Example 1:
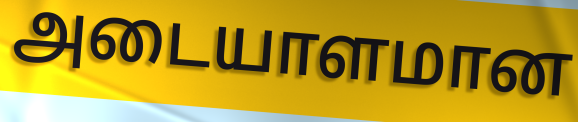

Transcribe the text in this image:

அடையாளமான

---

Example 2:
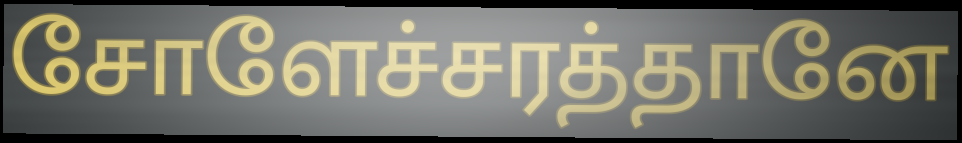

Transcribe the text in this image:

சோளேச்சரத்தானே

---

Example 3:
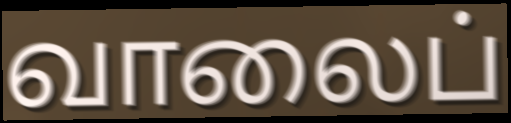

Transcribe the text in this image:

வாலைப்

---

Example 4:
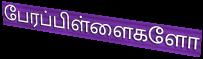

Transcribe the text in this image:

பேரப்பிள்ளைகளோ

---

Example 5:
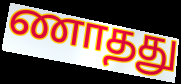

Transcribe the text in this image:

ணாதது